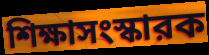
শিক্ষাসংস্কারক